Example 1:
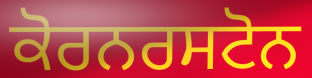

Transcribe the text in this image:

ਕੋਰਨਰਸਟੋਨ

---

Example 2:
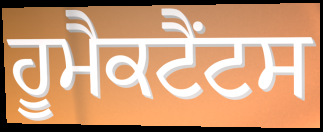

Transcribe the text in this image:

ਹੂਮੈਕਟੈਂਟਸ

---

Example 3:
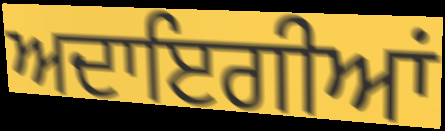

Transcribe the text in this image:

ਅਦਾਇਗੀਆਂ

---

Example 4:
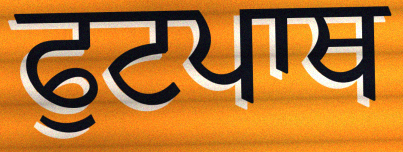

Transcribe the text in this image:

ਫੁਟਪਾਥ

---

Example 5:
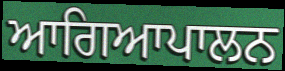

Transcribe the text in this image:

ਆਗਿਆਪਾਲਨ